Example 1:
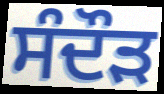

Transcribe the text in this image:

ਸੰਦੌੜ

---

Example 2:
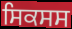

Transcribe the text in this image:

ਸਿਕਸਸ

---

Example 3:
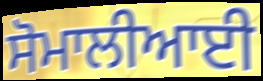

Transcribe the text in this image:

ਸੋਮਾਲੀਆਈ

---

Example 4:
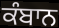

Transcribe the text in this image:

ਕੰਬਾਨ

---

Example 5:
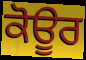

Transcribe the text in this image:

ਕੋਊਰ